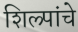
शिल्पांचे